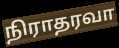
நிராதரவா